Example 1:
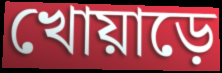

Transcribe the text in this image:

খোয়াড়ে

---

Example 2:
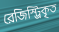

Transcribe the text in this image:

রেজিস্ট্রিকৃত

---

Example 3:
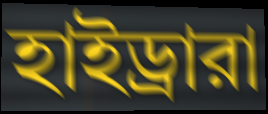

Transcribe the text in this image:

হাইড্রারা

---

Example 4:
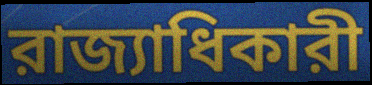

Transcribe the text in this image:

রাজ্যাধিকারী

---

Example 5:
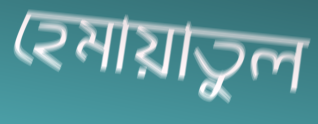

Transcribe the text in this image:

হেমায়াতুল